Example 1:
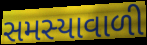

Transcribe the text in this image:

સમસ્યાવાળી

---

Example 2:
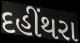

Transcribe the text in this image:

દહીંથરા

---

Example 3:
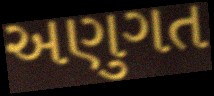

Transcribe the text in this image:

અણુગત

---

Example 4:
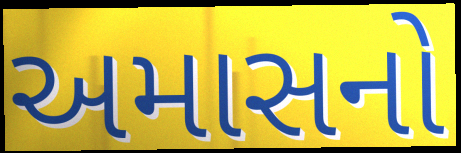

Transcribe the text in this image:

અમાસનો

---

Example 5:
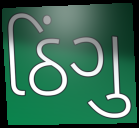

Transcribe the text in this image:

ઠિંગુ